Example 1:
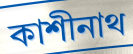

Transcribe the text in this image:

কাশীনাথ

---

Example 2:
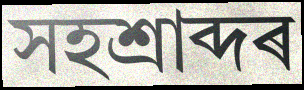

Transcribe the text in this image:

সহশ্ৰাব্দৰ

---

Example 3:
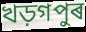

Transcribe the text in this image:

খড়গপুৰ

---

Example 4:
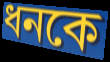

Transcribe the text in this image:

ধনকে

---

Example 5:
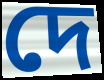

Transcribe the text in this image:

দে